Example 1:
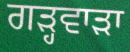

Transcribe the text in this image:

ਗੜ੍ਹਵਾੜਾ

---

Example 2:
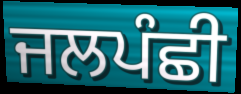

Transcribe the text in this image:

ਜਲਪੰਛੀ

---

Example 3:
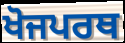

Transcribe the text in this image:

ਖੋਜਪਰਥ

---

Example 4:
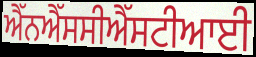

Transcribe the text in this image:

ਐੱਨਐੱਸਸੀਐੱਸਟੀਆਈ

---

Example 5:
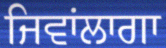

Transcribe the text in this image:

ਜਿਵਾਂਲਾਗਾ